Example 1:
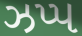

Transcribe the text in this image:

ઝપ્પ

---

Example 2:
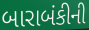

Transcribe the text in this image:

બારાબંકીની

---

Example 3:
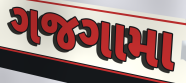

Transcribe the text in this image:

ગજગામા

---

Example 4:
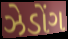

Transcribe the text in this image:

ઝેડોંગ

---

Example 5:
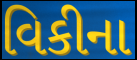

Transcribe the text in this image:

વિકીના